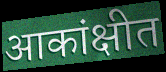
आकांक्षीत